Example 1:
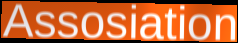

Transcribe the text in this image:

Assosiation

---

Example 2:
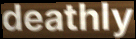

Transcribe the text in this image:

deathly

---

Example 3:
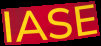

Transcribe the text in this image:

IASE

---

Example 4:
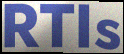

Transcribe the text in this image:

RTIs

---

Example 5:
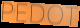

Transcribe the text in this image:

PEDOT